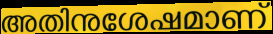
അതിനുശേഷമാണ്